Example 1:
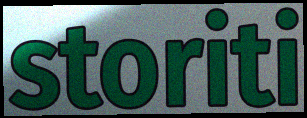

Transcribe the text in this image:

storiti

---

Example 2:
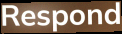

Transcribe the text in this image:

Respond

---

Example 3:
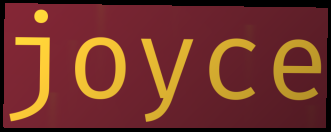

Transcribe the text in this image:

joyce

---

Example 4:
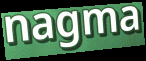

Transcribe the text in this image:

nagma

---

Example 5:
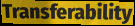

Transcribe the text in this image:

Transferability